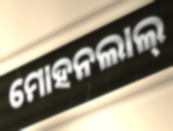
ମୋହନଲାଲ୍